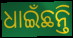
ଧାଇଁଛନ୍ତି